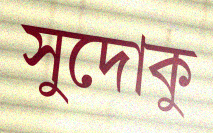
সুদোকু